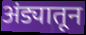
अंड्यातून